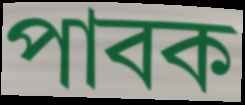
পাবক